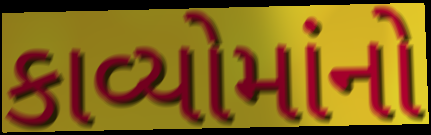
કાવ્યોમાંનો